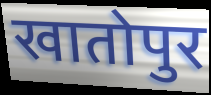
खातोपुर